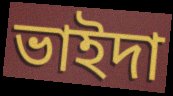
ভাইদা